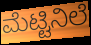
ಮೆಟ್ಟಿನಿಲೆ